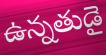
ఉన్నతుడై